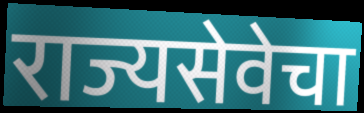
राज्यसेवेचा